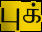
புக்